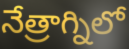
నేత్రాగ్నిలో